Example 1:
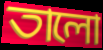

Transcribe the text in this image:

তালো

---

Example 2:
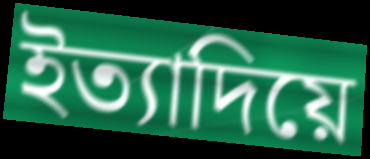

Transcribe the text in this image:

ইত্যাদিয়ে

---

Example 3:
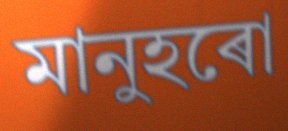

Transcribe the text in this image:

মানুহৰো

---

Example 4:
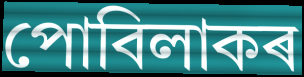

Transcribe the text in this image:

পোবিলাকৰ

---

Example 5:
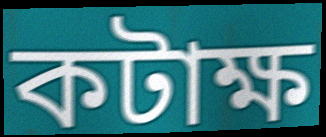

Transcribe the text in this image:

কটাক্ষ